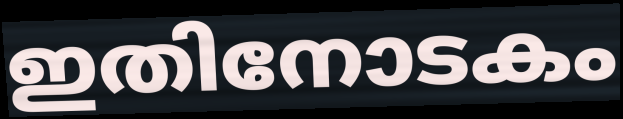
ഇതിനോടകം